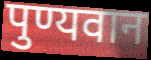
पुण्यवान